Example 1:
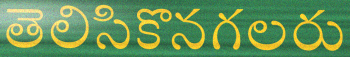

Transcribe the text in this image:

తెలిసికొనగలరు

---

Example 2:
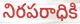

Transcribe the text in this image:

నిరపరాధికి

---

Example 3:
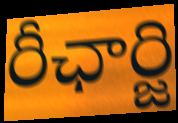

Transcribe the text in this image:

రీఛార్జి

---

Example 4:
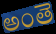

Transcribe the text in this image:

అంతె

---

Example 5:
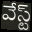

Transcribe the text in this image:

వేస్ట్